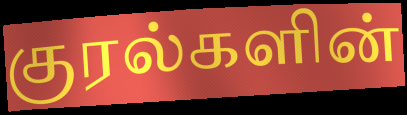
குரல்களின்